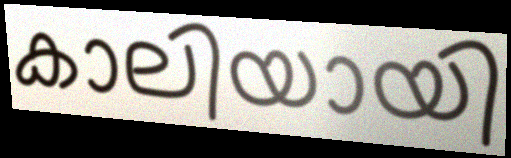
കാലിയായി